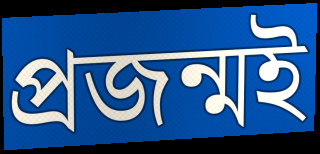
প্ৰজন্মই